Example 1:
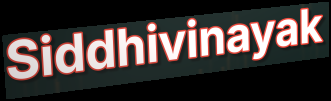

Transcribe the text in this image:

Siddhivinayak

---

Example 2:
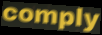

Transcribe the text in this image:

comply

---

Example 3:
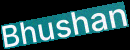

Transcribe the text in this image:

Bhushan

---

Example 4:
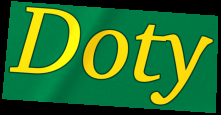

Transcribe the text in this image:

Doty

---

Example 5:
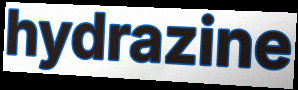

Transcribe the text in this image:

hydrazine